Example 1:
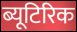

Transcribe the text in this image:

ब्यूटिरिक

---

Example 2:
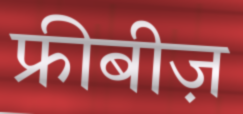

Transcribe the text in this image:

फ्रीबीज़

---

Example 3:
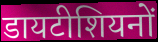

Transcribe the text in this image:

डायटीशियनों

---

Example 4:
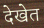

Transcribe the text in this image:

देखेत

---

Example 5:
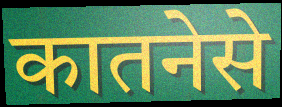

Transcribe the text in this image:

कातनेसे